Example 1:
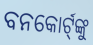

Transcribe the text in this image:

ବନକୋର୍ଟ୍‍ଙ୍କୁ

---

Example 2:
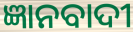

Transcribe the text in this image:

ଜ୍ଞାନବାଦୀ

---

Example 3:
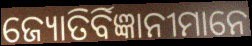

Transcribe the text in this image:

ଜ୍ୟୋତିର୍ବିଜ୍ଞାନୀମାନେ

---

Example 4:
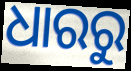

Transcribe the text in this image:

ଧାରରୁ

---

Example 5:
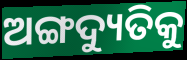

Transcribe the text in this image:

ଅଙ୍ଗଦ୍ୟୁତିକୁ